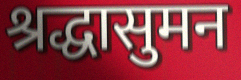
श्रद्धासुमन